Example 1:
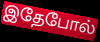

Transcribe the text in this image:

இதேபோல்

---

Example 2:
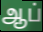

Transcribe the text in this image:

ஆப்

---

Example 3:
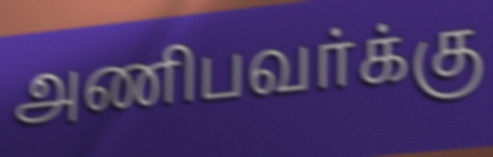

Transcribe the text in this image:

அணிபவர்க்கு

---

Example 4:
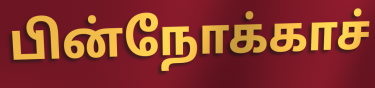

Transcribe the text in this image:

பின்நோக்காச்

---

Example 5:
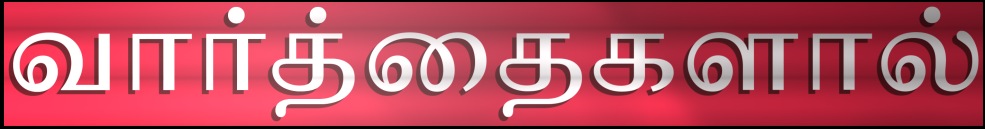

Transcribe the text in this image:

வார்த்தைகளால்